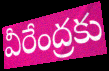
వీరేంద్రకు